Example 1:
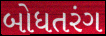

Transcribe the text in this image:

બોધતરંગ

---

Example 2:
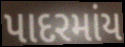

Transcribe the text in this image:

પાદરમાંય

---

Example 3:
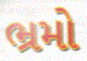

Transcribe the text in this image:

ભ્રમો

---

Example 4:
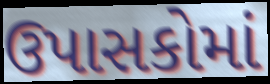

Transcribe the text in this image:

ઉપાસકોમાં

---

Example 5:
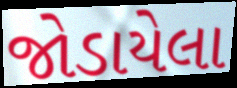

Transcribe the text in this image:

જોડાયેલા